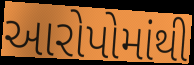
આરોપોમાંથી